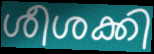
ശീശക്കി